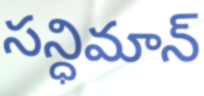
సన్ధిమాన్